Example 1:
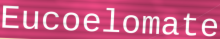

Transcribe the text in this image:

Eucoelomate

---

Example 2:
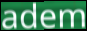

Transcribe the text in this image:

adem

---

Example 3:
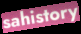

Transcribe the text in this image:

sahistory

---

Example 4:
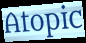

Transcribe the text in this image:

Atopic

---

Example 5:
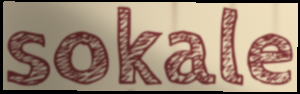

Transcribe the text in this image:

sokale